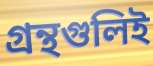
গ্রন্থগুলিই